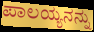
ಪಾಲಯ್ಯನನ್ನು